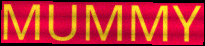
MUMMY